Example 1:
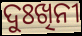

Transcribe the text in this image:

ଦୁଃଖିନୀ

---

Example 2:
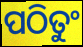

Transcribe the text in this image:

ପଠିତୁଂ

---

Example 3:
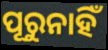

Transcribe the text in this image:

ପୂରୁନାହିଁ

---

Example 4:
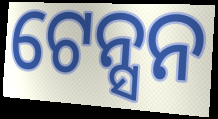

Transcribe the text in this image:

ଟେନ୍ସନ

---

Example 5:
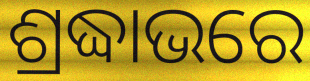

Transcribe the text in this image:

ଶ୍ରଦ୍ଧାଭରେ